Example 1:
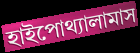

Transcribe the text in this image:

হাইপোথ্যালামাস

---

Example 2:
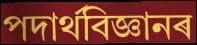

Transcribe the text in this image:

পদাৰ্থবিজ্ঞানৰ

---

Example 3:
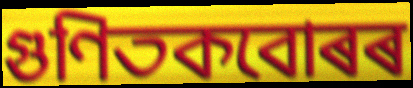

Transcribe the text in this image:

গুণিতকবোৰৰ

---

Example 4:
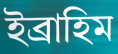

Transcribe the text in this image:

ইব্ৰাহিম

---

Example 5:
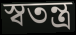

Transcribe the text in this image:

স্বতন্ত্ৰ